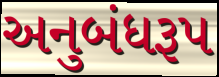
અનુબંધરૂપ